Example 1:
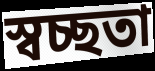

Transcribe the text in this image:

স্বচ্ছতা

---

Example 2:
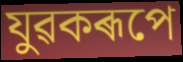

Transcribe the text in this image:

যুৱকৰূপে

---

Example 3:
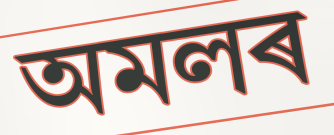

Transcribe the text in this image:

অমলৰ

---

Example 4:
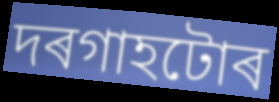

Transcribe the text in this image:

দৰগাহটোৰ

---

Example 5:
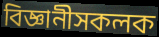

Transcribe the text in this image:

বিজ্ঞানীসকলক